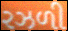
રઝળી